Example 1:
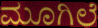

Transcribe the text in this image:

ಮೂಗಿಲೆ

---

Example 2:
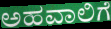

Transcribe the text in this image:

ಅಹವಾಲಿಗೆ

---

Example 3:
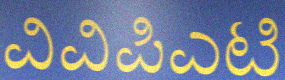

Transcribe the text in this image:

ವಿವಿಪಿಎಟಿ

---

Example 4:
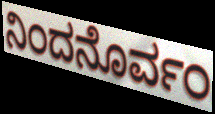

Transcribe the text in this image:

ನಿಂದನೊರ್ವಂ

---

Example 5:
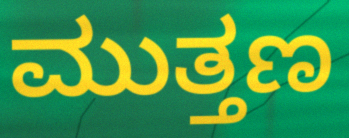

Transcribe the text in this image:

ಮುತ್ತಣ